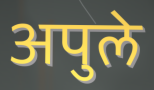
अपुले